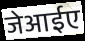
जेआईए